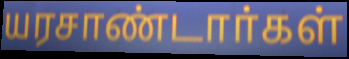
யரசாண்டார்கள்